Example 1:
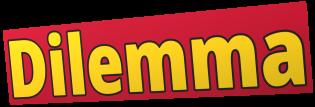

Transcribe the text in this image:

Dilemma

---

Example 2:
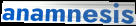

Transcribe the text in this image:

anamnesis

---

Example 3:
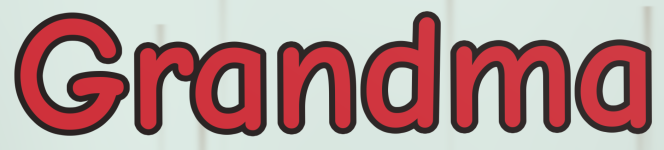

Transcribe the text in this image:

Grandma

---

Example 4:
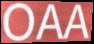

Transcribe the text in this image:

OAA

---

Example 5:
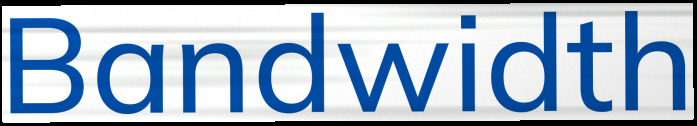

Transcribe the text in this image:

Bandwidth